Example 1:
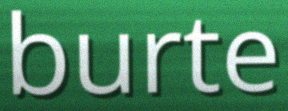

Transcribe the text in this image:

burte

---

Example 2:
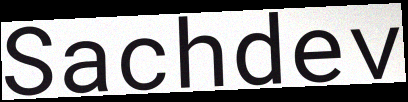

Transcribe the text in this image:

Sachdev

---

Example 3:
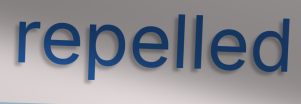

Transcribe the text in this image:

repelled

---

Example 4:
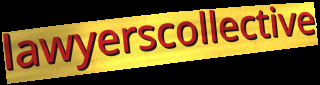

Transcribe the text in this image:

lawyerscollective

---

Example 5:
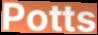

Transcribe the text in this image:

Potts